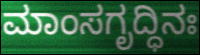
ಮಾಂಸಗೃದ್ಧಿನಃ